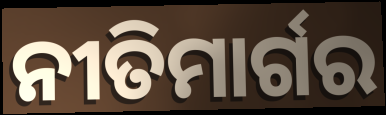
ନୀତିମାର୍ଗର